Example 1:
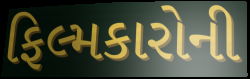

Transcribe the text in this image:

ફિલ્મકારોની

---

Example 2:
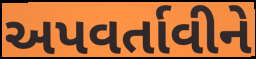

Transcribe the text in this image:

અપવર્તાવીને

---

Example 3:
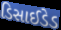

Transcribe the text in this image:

ડિસાઈડેડ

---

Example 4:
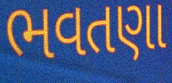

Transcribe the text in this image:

ભવતણા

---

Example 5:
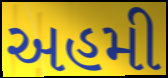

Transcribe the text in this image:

અહમી